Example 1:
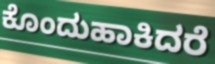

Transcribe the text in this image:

ಕೊಂದುಹಾಕಿದರೆ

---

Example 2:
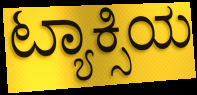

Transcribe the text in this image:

ಟ್ಯಾಕ್ಸಿಯ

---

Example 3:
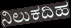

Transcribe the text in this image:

ನಿಲುಕದಿಹ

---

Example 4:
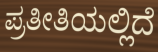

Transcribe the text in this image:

ಪ್ರತೀತಿಯಲ್ಲಿದೆ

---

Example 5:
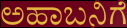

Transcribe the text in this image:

ಅಹಾಬನಿಗೆ